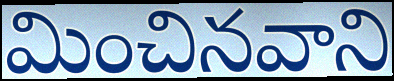
మించినవాని